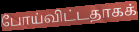
போய்விட்டதாகக்